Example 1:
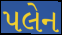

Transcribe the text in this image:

પલેન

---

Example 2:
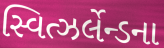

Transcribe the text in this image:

સ્વિત્ઝર્લેન્ડના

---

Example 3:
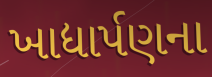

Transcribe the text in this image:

ખાદ્યાર્પણના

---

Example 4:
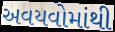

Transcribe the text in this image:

અવયવોમાંથી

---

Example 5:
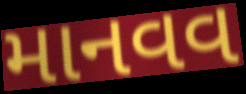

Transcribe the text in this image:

માનવવ